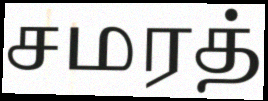
சமரத்